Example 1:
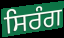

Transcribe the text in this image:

ਸਿਰੰਗ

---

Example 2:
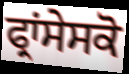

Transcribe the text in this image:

ਫ੍ਰਾਂਸੇਸਕੋ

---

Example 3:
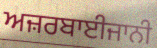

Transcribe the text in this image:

ਅਜ਼ਰਬਾਈਜਾਨੀ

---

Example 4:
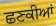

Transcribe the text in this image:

ਛਣਕੀਆਂ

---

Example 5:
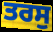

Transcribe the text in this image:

ਤਰਸੁ